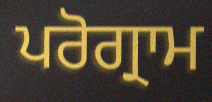
ਪਰੋਗ੍ਰਾਮ